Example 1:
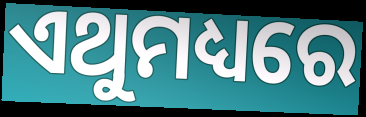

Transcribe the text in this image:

ଏଥୁମଧ୍ୟରେ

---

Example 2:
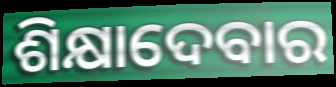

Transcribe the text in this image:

ଶିକ୍ଷାଦେବାର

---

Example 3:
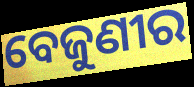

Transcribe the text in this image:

ବେଜୁଣୀର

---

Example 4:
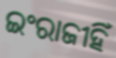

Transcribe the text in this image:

ଇଂରାଜୀହିଁ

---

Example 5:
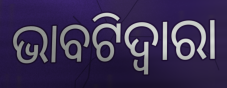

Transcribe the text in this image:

ଭାବଟିଦ୍ୱାରା